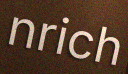
nrich